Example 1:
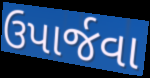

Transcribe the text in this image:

ઉપાર્જવા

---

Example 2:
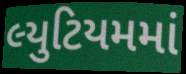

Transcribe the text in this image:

લ્યુટિયમમાં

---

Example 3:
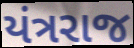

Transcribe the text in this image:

યંત્રરાજ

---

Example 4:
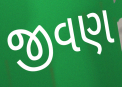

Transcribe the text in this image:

જીવણ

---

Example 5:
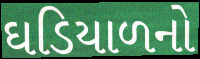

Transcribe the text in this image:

ઘડિયાળનો